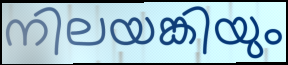
നിലയങ്കിയും